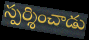
స్పర్శించాడు